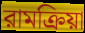
রামক্রিয়া